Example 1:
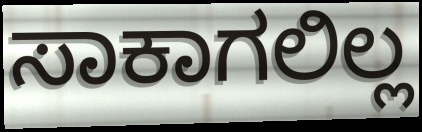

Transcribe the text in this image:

ಸಾಕಾಗಲಿಲ್ಲ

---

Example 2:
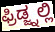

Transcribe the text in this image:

ಫ್ರಿಡ್ಜ್ನಲ್ಲಿ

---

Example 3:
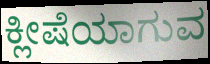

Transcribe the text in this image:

ಕ್ಲೀಷೆಯಾಗುವ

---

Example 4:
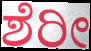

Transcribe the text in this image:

ಶೆರೀ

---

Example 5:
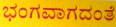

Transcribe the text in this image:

ಭಂಗವಾಗದಂತೆ